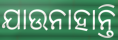
ଯାଉନାହାନ୍ତି